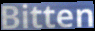
Bitten